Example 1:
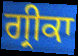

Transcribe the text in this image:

ਗ੍ਰੀਕਾ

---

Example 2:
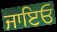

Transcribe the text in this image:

ਜਾਇਓ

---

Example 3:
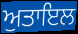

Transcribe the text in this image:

ਅੁਤਾਇਲ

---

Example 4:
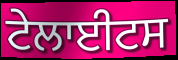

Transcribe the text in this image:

ਟੇਲਾਈਟਸ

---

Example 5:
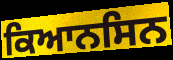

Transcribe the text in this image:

ਕਿਆਨਸਿਨ